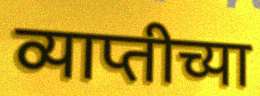
व्याप्तीच्या